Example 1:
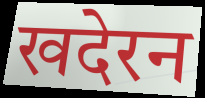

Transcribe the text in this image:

खदेरन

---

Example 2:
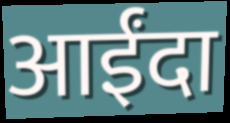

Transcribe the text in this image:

आईंदा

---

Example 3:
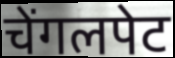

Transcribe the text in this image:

चेंगलपेट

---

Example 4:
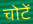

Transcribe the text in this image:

चोटें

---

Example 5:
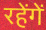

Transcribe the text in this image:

रहेंगें